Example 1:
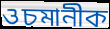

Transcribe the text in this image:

ওচমানীক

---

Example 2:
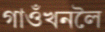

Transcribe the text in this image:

গাওঁখনলৈ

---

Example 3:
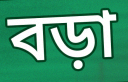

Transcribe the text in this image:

বড়া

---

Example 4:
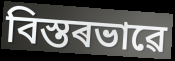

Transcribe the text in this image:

বিস্তৰভাৱে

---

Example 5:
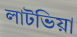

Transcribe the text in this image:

লাটভিয়া